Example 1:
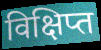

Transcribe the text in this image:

विक्षिप्त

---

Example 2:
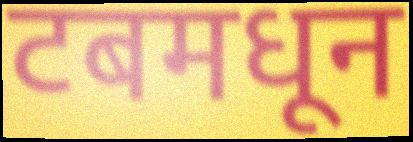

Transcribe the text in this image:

टबमधून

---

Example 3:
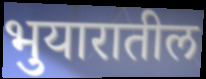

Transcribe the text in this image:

भुयारातील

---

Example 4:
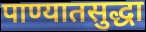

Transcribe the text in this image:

पाण्यातसुद्धा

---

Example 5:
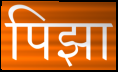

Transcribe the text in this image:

पिझा